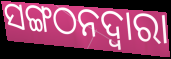
ସଙ୍ଗଠନଦ୍ୱାରା